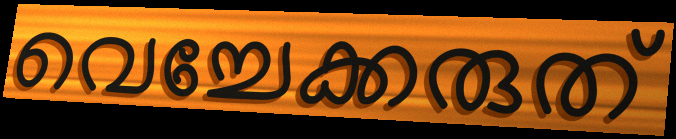
വെച്ചേക്കരുത്